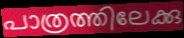
പാത്രത്തിലേക്കു